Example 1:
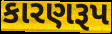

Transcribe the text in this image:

કારણરૂપ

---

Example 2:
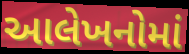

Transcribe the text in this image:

આલેખનોમાં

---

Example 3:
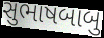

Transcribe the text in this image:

સુભાષબાબુ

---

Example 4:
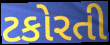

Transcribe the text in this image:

ટકોરતી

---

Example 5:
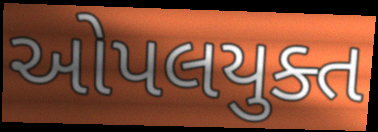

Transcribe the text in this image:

ઓપલયુક્ત